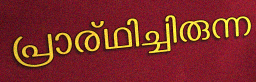
പ്രാര്ഥിച്ചിരുന്ന